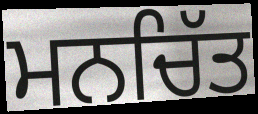
ਮਨਚਿੱਤ